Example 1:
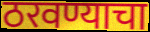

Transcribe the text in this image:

ठरवण्याचा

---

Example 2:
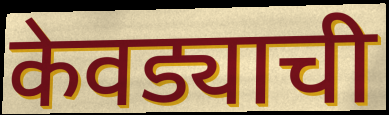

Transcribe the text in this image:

केवड्याची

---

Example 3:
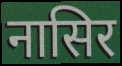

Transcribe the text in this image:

नासिर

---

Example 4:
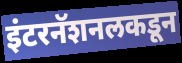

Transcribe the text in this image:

इंटरनॅशनलकडून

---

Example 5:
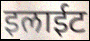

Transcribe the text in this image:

इलाईट